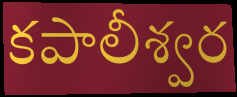
కపాలీశ్వర